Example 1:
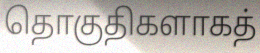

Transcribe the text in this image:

தொகுதிகளாகத்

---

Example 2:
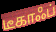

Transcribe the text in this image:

டீகாஃப்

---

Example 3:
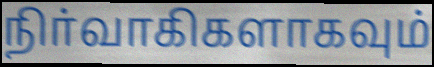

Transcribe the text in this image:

நிர்வாகிகளாகவும்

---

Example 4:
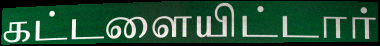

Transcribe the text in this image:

கட்டளையிட்டார்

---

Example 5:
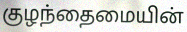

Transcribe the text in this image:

குழந்தைமையின்